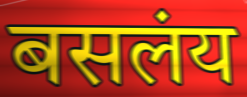
बसलंय